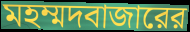
মহম্মদবাজারের